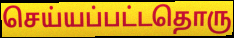
செய்யப்பட்டதொரு